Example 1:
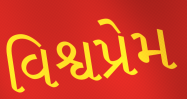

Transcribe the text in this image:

વિશ્વપ્રેમ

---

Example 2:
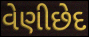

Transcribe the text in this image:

વેણીછેદ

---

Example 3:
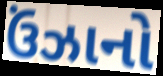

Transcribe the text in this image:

ઉંઝાનો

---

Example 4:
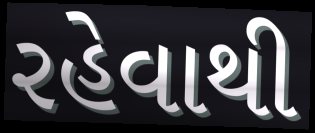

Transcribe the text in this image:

રહેવાથી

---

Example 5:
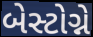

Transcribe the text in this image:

બેસ્ટોગ્ને